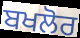
ਬਖਲੋਰ